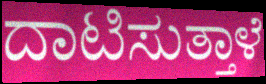
ದಾಟಿಸುತ್ತಾಳೆ